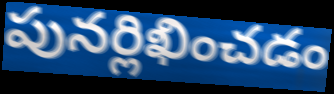
పునర్లిఖించడం